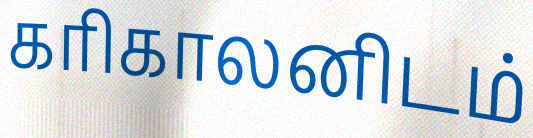
கரிகாலனிடம்